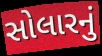
સોલારનું